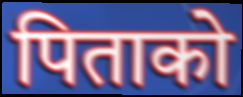
पिताको